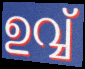
ഉവ്വ്